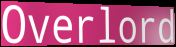
Overlord